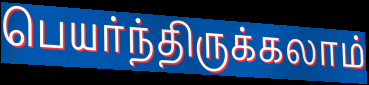
பெயர்ந்திருக்கலாம்